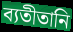
ব্যতীতানি